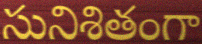
సునిశితంగా